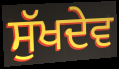
ਸੁੱਖਦੇਵ